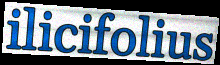
ilicifolius